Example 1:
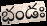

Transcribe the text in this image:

భండః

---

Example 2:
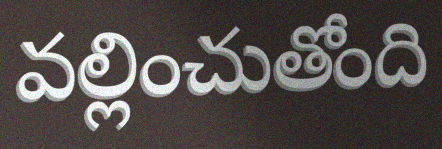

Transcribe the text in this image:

వల్లించుతోంది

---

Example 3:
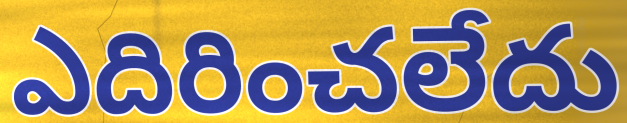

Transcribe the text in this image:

ఎదిరించలేదు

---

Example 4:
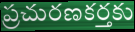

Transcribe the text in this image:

ప్రచురణకర్తకు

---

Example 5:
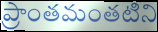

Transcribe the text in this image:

ప్రాంతమంతటిని